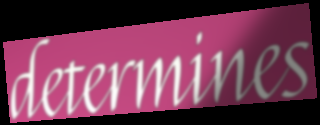
determines